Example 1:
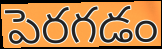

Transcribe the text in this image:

పెరగడం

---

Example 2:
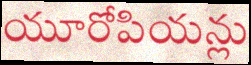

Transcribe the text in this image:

యూరోపియన్లు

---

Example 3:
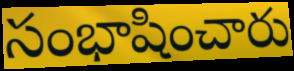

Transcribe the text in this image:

సంభాషించారు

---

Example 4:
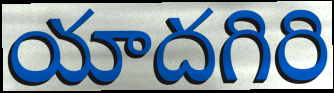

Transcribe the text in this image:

యాదగిరి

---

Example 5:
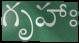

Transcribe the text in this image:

గృహాః